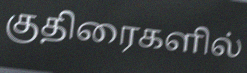
குதிரைகளில்